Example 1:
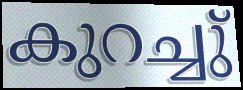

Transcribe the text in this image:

കുറച്ചു്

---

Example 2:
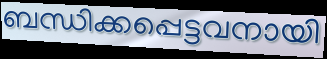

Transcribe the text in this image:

ബന്ധിക്കപ്പെട്ടവനായി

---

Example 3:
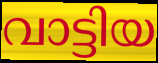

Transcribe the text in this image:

വാട്ടിയ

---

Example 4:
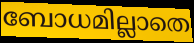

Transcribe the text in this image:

ബോധമില്ലാതെ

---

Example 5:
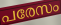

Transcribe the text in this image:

പരേസം